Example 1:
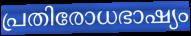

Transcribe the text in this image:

പ്രതിരോധഭാഷ്യം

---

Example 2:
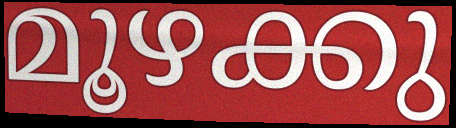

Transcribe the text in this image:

മൂഴക്കു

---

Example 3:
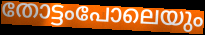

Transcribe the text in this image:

തോട്ടംപോലെയും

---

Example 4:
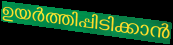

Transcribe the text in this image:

ഉയർത്തിപ്പിടിക്കാൻ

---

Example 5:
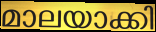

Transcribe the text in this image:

മാലയാക്കി